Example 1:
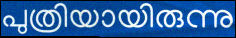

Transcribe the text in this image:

പുത്രിയായിരുന്നു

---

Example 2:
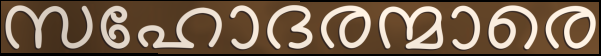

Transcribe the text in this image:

സഹോദരന്മാരെ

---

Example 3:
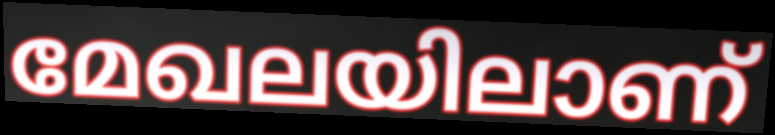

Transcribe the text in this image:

മേഖലയിലാണ്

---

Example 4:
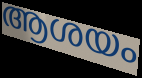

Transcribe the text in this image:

ആശയം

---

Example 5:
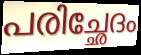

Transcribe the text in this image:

പരിച്ഛേദം